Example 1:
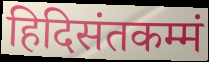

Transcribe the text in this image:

हिदिसंतकम्मं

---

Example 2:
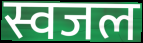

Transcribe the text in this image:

स्वजल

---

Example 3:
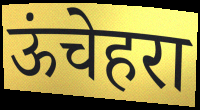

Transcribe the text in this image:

ऊंचेहरा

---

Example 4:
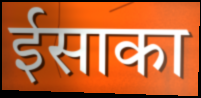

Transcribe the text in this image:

ईसाका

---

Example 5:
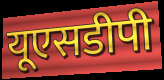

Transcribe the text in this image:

यूएसडीपी